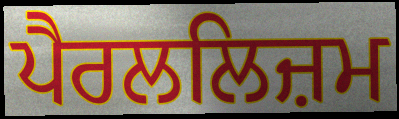
ਪੈਰਲਲਿਜ਼ਮ